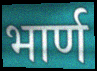
भार्ण